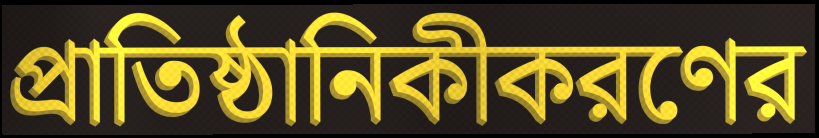
প্রাতিষ্ঠানিকীকরণের